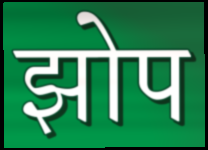
झोप